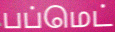
பப்மெட்